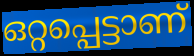
ഒറ്റപ്പെട്ടാണ്